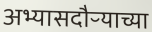
अभ्यासदौऱ्याच्या